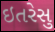
ઇતરેસુ